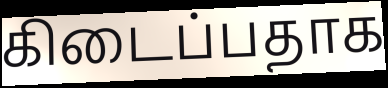
கிடைப்பதாக